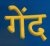
गेंद